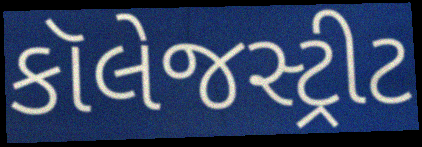
કૉલેજસ્ટ્રીટ